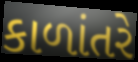
કાળાંતરે